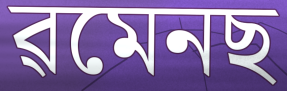
ৱমেনছ